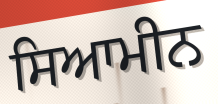
ਸਿਆਮੀਨ